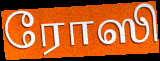
ரோஸி